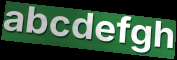
abcdefgh